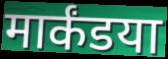
मार्कंडया